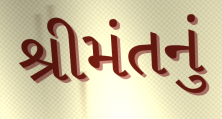
શ્રીમંતનું